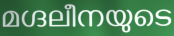
മഗ്ദലീനയുടെ